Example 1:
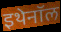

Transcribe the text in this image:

इथेनॉल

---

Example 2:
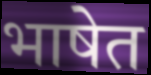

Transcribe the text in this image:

भाषेत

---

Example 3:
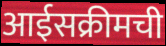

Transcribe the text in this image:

आईसक्रीमची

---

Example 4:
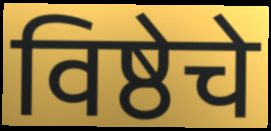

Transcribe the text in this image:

विष्ठेचे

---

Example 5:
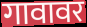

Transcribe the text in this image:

गावावर